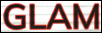
GLAM